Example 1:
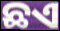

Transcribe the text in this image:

ଛଏ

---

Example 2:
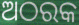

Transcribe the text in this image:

ଅଠରକ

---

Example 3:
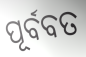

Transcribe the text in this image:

ପୂର୍ବବତ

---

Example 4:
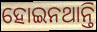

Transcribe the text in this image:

ହୋଇନଥାନ୍ତି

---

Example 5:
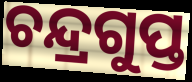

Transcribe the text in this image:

ଚନ୍ଦ୍ରଗୁପ୍ତ